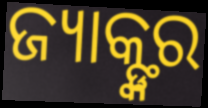
ଜ୍ୟାକ୍ଙ୍କର